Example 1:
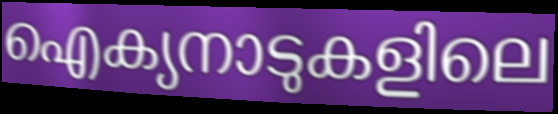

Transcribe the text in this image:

ഐക്യനാടുകളിലെ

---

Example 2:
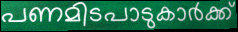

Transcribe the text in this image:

പണമിടപാടുകാർക്ക്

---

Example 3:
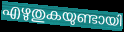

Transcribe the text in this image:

എഴുതുകയുണ്ടായി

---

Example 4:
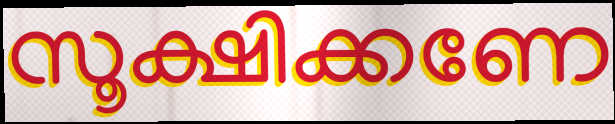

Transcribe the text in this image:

സൂക്ഷിക്കണേ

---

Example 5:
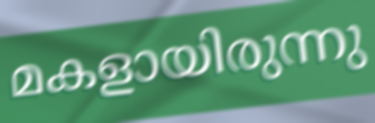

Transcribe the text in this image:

മകളായിരുന്നു